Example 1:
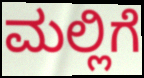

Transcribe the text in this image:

ಮಲ್ಲಿಗೆ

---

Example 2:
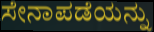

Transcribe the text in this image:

ಸೇನಾಪಡೆಯನ್ನು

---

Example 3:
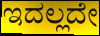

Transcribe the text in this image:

ಇದಲ್ಲದೇ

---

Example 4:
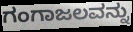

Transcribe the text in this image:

ಗಂಗಾಜಲವನ್ನು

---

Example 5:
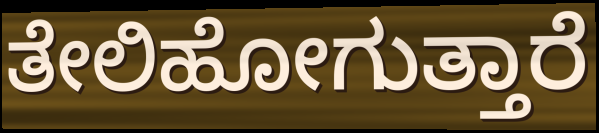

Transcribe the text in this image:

ತೇಲಿಹೋಗುತ್ತಾರೆ